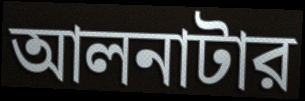
আলনাটার